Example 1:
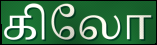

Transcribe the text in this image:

கிலோ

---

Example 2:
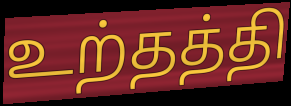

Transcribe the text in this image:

உற்தத்தி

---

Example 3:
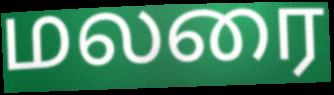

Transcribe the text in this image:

மலரை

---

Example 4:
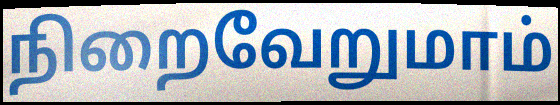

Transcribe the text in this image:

நிறைவேறுமாம்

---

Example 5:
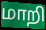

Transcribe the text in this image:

மாறி